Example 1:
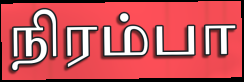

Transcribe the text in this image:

நிரம்பா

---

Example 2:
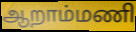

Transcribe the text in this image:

ஆறாம்மணி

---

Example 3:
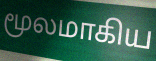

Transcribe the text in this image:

மூலமாகிய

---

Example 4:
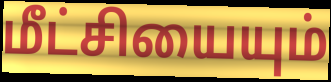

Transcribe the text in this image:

மீட்சியையும்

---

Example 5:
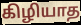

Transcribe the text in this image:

கிழியாத